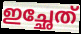
ഇച്ഛേത്